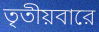
তৃতীয়বারে